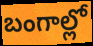
బంగాల్లో